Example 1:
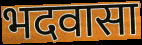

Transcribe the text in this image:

भदवासा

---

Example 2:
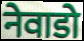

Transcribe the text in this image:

नेवाडो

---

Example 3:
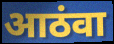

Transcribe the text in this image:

आठंवा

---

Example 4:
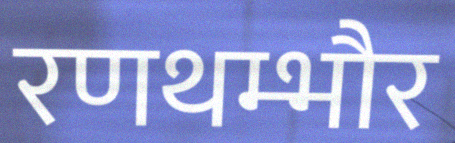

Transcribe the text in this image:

रणथम्भौर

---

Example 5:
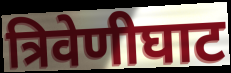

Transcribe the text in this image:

त्रिवेणीघाट